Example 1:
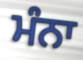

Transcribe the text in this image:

ਮੰਨਾ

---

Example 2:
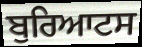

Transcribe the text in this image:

ਬੁਰਿਆਟਸ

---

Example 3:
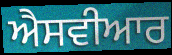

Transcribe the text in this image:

ਐਸਵੀਆਰ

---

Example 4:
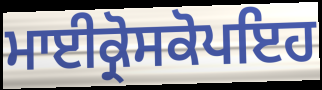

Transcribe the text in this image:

ਮਾਈਕ੍ਰੋਸਕੋਪਇਹ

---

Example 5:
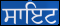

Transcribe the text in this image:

ਸਾਇਟ